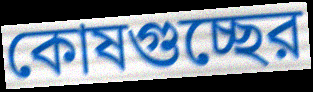
কোষগুচ্ছের